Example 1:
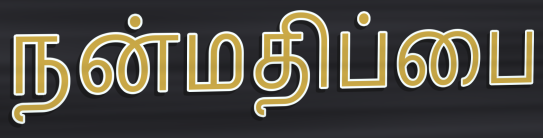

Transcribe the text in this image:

நன்மதிப்பை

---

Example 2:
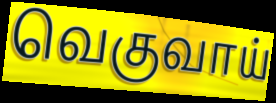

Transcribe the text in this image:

வெகுவாய்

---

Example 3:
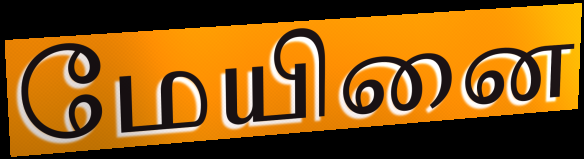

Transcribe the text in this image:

மேயினை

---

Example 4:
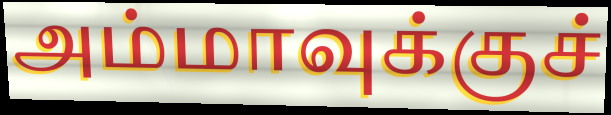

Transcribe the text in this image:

அம்மாவுக்குச்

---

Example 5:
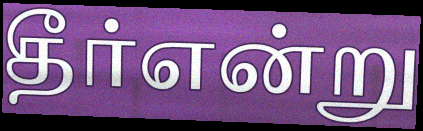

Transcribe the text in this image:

தீர்என்று